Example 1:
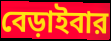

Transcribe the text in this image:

বেড়াইবার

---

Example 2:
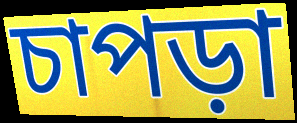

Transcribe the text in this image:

চাপড়া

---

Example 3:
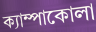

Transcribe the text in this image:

ক্যাম্পাকোলা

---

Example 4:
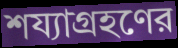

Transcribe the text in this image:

শয্যাগ্রহণের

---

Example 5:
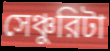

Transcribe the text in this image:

সেঞ্চুরিটা